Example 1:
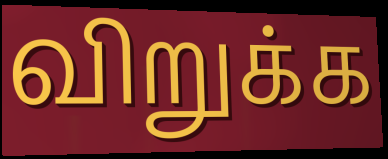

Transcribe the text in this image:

விறுக்க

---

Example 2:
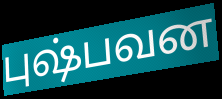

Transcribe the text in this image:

புஷ்பவன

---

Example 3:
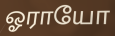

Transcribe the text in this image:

ஓராயோ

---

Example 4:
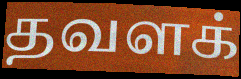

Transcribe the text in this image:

தவளக்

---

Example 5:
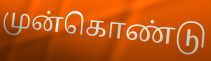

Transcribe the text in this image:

முன்கொண்டு